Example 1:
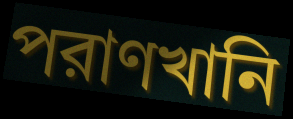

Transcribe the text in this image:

পরাণখানি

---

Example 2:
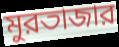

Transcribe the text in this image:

মুরতাজার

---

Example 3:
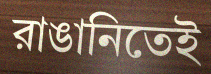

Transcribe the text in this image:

রাঙানিতেই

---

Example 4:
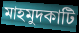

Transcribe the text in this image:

মাহমুদকাটি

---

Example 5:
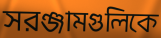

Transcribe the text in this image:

সরঞ্জামগুলিকে